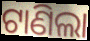
ଟାଣିଲା